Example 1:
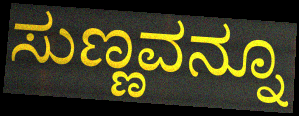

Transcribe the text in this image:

ಸುಣ್ಣವನ್ನೂ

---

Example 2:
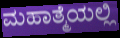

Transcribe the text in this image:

ಮಹಾತ್ಮೆಯಲ್ಲಿ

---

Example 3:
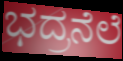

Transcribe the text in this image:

ಭದ್ರನೆಲೆ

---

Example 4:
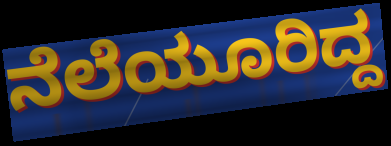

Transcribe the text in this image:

ನೆಲೆಯೂರಿದ್ದ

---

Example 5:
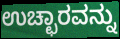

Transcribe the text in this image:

ಉಚ್ಛಾರವನ್ನು